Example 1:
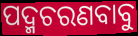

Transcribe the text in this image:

ପଦ୍ମଚରଣବାବୁ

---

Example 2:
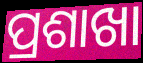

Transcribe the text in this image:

ପ୍ରଶାଖା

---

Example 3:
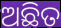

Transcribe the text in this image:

ଅଛିତ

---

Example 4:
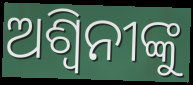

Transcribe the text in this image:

ଅଶ୍ୱିନୀଙ୍କୁ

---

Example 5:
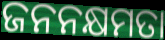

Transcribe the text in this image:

ଜନନକ୍ଷମତା